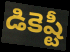
డికెష్టీ